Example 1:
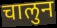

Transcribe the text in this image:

चालुन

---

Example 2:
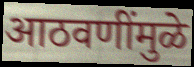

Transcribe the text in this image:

आठवणींमुळे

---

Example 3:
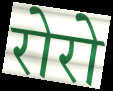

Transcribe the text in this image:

रोरो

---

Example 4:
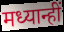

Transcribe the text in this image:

मध्यान्हीं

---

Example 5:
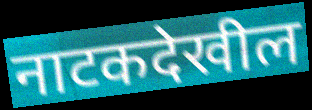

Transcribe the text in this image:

नाटकदेखील